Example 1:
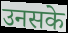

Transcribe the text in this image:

उनसके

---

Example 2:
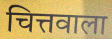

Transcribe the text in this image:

चित्तवाला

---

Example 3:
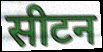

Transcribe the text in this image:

सीटन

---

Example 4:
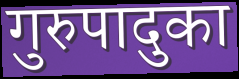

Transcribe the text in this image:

गुरुपादुका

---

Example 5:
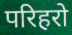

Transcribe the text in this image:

परिहरो